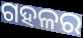
ଗହଳର